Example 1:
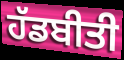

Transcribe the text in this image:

ਹੱਡਬੀਤੀ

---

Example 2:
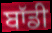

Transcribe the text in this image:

ਬਾੱਡੀ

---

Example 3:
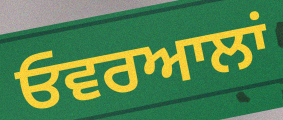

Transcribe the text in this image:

ਓਵਰਆਲਾਂ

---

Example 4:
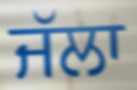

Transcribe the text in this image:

ਜੱਲਾ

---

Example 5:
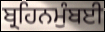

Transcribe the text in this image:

ਬ੍ਰਹਿਨਮੁੰਬਈ